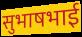
सुभाषभाई